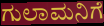
ಗುಲಾಮನಿಗೆ